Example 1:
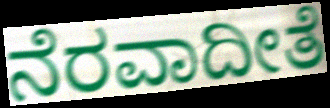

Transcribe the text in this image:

ನೆರವಾದೀತೆ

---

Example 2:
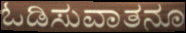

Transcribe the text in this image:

ಓಡಿಸುವಾತನೂ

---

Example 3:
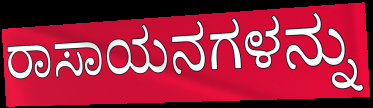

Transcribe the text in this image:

ರಾಸಾಯನಗಳನ್ನು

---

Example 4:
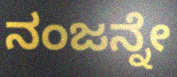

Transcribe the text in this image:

ನಂಜನ್ನೇ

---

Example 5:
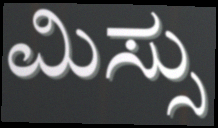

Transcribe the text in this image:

ಮಿಸ್ಸು